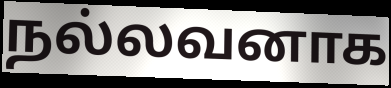
நல்லவனாக